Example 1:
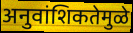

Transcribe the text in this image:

अनुवांशिकतेमुळे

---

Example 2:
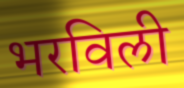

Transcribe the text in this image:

भरविली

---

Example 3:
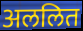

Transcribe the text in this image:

अललित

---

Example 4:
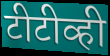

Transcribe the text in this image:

टीटीव्ही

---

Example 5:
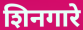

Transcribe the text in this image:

शिनगारे